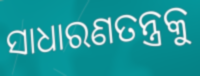
ସାଧାରଣତନ୍ତ୍ରକୁ